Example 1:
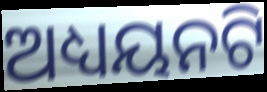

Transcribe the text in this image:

ଅଧ୍ୟୟନଟି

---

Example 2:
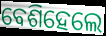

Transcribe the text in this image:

ବେଶିହେଲେ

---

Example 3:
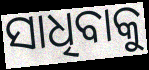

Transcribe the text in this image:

ସାଧିବାକୁ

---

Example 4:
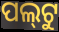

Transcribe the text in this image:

ପଲ୍‍ଟୁ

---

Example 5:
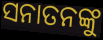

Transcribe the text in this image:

ସନାତନଙ୍କୁ